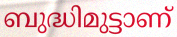
ബുദ്ധിമുട്ടാണ്